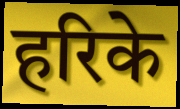
हरिके